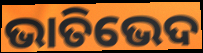
ଭାତିଭେଦ